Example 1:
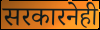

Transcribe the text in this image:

सरकारनेही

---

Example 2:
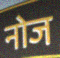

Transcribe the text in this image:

नोज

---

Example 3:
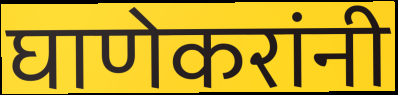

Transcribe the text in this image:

घाणेकरांनी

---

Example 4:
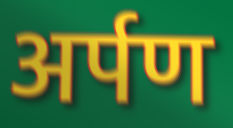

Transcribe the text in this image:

अर्पण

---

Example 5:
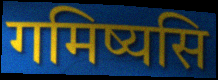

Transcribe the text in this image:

गमिष्यसि